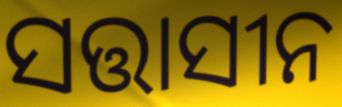
ସତ୍ତାସୀନ